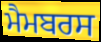
ਮੈਮਬਰਸ